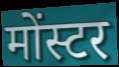
मोंस्टर